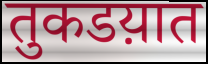
तुकडय़ात